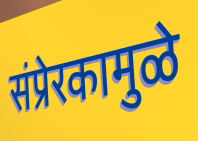
संप्रेरकामुळे